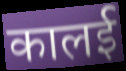
कालई